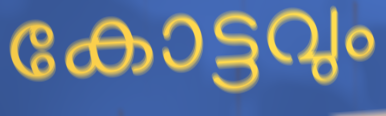
കോട്ടവും